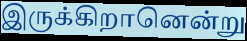
இருக்கிறானென்று